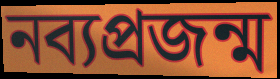
নব্যপ্রজন্ম